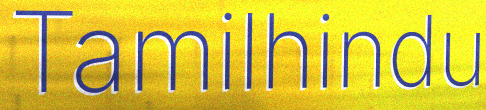
Tamilhindu